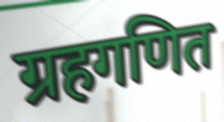
ग्रहगणित